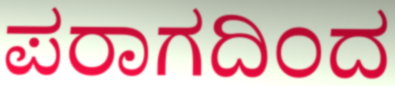
ಪರಾಗದಿಂದ